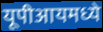
यूपीआयमध्ये